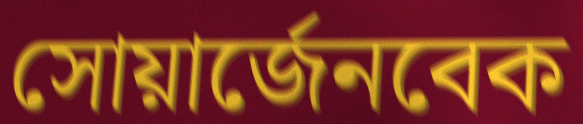
সোয়ার্জেনবেক